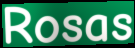
Rosas